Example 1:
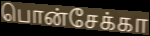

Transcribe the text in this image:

பொன்சேக்கா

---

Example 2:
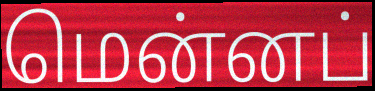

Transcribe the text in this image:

மென்னப்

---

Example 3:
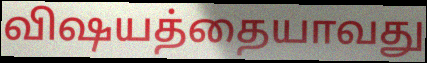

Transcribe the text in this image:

விஷயத்தையாவது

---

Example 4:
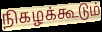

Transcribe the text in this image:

நிகழக்கூடும்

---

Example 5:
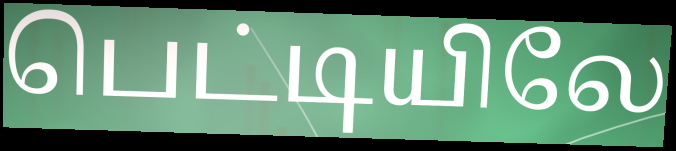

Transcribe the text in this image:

பெட்டியிலே